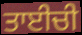
ਤਾਈਚੀ